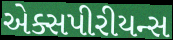
એક્સપીરીયન્સ